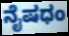
ನೈಷಧಂ